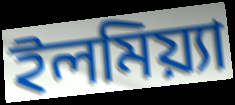
ইলমিয়্যা